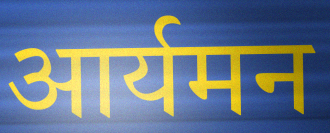
आर्यमन